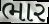
ભાર